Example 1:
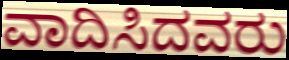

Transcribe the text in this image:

ವಾದಿಸಿದವರು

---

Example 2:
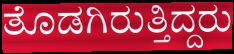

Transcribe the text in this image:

ತೊಡಗಿರುತ್ತಿದ್ದರು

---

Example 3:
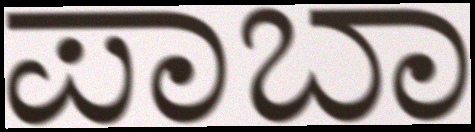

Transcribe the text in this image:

ಪಾಬಾ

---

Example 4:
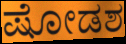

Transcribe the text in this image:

ಷೋಡಶ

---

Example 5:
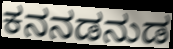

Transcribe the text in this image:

ಕನನಡನುಡ